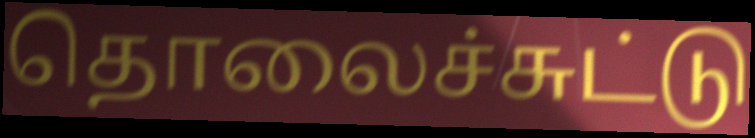
தொலைச்சுட்டு